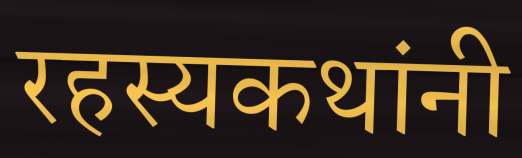
रहस्यकथांनी